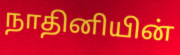
நாதினியின்